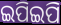
ଇପିଇପି